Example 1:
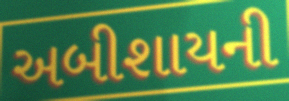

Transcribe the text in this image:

અબીશાયની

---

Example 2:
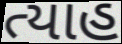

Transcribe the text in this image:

ત્યાહ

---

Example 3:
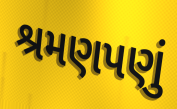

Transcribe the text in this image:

શ્રમણપણું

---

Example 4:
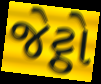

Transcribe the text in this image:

જેટ્ઠો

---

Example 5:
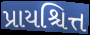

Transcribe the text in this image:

પ્રાયશ્ચિત્ત